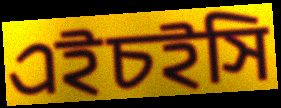
এইচইসি